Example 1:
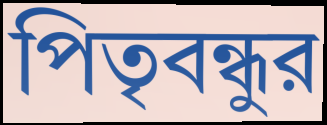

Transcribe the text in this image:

পিতৃবন্ধুর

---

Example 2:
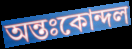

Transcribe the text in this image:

অন্তঃকোন্দল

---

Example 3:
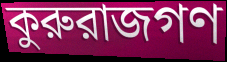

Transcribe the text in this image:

কুরুরাজগণ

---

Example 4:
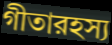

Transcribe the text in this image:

গীতারহস্য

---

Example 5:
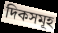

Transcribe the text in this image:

দিকসমূহ